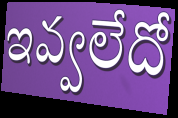
ఇవ్వలేదో